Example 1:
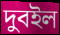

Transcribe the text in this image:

দুবইল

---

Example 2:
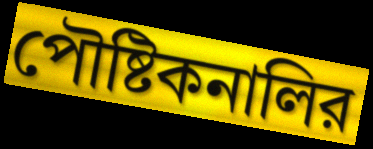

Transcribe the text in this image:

পৌষ্টিকনালির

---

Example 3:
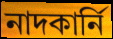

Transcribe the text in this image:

নাদকার্নি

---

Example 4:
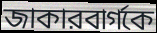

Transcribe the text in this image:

জাকারবার্গকে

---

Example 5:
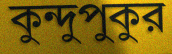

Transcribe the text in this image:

কুন্দুপুকুর